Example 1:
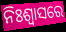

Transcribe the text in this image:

ନିଃଶ୍ଵାସରେ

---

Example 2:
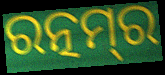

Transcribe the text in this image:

ରତ୍ନମ୍‌ର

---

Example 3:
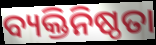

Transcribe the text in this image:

ବ୍ୟକ୍ତିନିଷ୍ଠତା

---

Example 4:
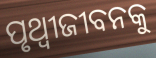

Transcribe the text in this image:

ପୃଥ୍ୱୀଜୀବନକୁ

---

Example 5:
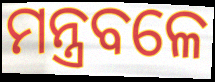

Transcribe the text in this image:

ମନ୍ତ୍ରବଳେ